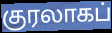
குரலாகப்